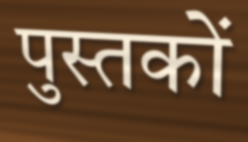
पुस्‍तकों